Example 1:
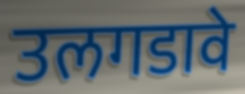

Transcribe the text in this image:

उलगडावे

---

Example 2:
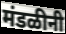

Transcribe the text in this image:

मंडळीनी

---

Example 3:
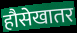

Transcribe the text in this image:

हौसेखातर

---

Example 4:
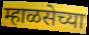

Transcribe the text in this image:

म्हाळसेच्या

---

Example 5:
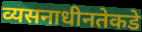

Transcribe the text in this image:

व्यसनाधीनतेकडे